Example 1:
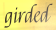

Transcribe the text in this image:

girded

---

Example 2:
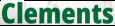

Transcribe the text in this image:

Clements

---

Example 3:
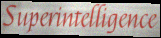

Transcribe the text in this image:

Superintelligence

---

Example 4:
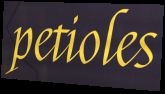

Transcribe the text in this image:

petioles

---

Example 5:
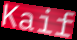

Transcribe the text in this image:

Kaif